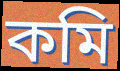
কমি